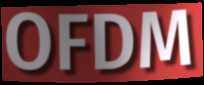
OFDM